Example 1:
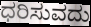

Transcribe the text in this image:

ಧರಿಸುವದು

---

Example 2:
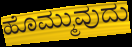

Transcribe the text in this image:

ಹೊಮ್ಮುವುದು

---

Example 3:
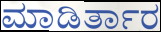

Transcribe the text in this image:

ಮಾಡಿರ್ತಾರ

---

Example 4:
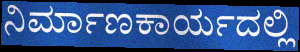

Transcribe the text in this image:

ನಿರ್ಮಾಣಕಾರ್ಯದಲ್ಲಿ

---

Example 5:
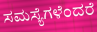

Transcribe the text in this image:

ಸಮಸ್ಯೆಗಳೆಂದರೆ